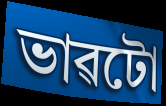
ভাৱটো